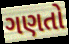
ગણતો